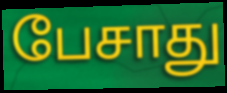
பேசாது